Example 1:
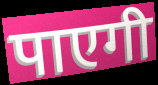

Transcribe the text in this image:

पाएगी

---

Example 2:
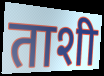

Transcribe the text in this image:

ताशी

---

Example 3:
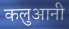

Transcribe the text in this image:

कलुआनी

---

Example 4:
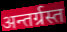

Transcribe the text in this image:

अन्तर्ग्रस्त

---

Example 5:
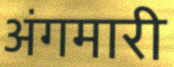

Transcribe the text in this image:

अंगमारी